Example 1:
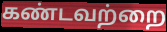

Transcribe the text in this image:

கண்டவற்றை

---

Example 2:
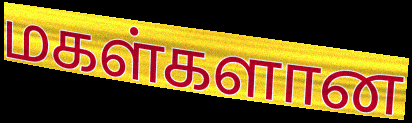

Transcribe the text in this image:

மகள்களான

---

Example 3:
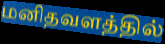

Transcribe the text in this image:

மனிதவளத்தில்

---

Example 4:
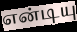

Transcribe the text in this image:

என்டியு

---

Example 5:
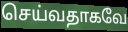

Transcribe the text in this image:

செய்வதாகவே